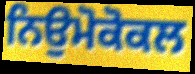
ਨਿਉਮੋਕੋਕਲ